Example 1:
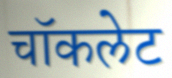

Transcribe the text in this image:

चॉकलेट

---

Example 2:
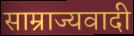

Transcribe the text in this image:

साम्राज्यवादी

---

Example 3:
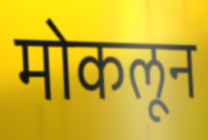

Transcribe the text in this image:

मोकलून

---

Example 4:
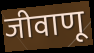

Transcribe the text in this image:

जीवाणू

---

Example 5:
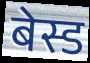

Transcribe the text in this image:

बेस्ड